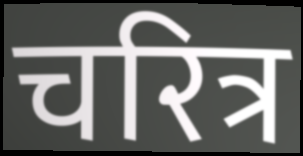
चरित्र